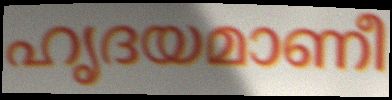
ഹൃദയമാണീ